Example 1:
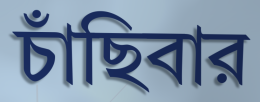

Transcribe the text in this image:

চাঁছিবার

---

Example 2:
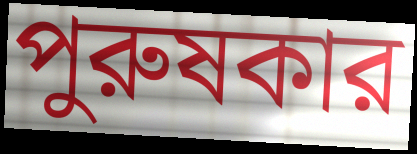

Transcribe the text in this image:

পুরুষকার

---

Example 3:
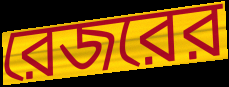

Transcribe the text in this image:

রেজরের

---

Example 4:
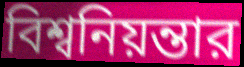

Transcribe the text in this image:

বিশ্বনিয়ন্তার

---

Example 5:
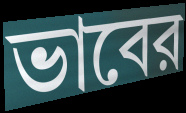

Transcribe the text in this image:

ভাবের